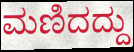
ಮಣಿದದ್ದು